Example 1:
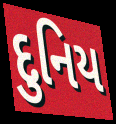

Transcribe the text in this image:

દુનિય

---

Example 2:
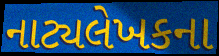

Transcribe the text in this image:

નાટ્યલેખકના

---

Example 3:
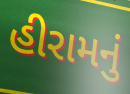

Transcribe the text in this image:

હીરામનું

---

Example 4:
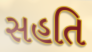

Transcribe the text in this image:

સહતિ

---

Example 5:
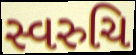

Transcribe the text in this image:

સ્વરુચિ